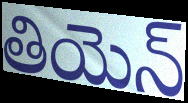
తియెన్